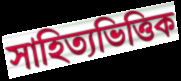
সাহিত্যভিত্তিক